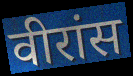
वीरांस